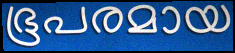
ഭൂപരമായ